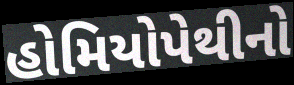
હોમિયોપેથીનો